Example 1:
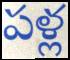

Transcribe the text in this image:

పళ్ల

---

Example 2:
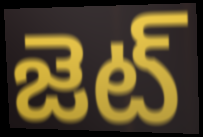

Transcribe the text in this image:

జెట్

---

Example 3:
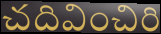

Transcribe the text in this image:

చదివించిరి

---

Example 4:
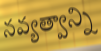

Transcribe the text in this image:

నవ్యత్వాన్ని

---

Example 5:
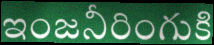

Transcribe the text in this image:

ఇంజనీరింగుకి